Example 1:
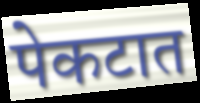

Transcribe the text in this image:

पेकटात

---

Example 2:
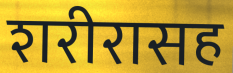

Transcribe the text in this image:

शरीरासह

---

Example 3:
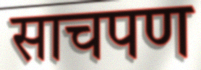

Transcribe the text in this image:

साचपण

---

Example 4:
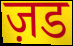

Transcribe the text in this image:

ज़ड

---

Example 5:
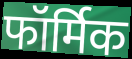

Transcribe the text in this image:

फॉर्मिक